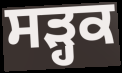
ਸੜ੍ਹਕ